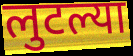
लुटल्या